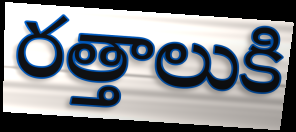
రత్తాలుకి